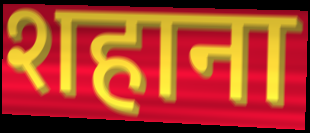
शहाना